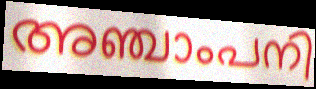
അഞ്ചാംപനി